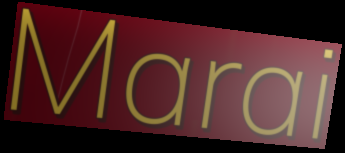
Marai